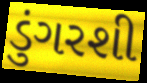
ડુંગરશી